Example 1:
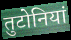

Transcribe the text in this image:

तुटोनियां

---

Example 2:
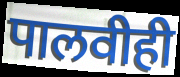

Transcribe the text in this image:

पालवीही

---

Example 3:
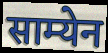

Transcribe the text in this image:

साम्येन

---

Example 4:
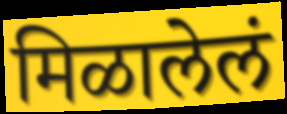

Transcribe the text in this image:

मिळालेलं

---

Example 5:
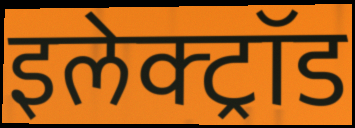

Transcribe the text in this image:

इलेक्ट्रॉड